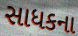
સાધકના